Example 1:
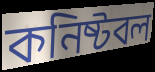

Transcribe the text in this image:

কনিষ্টবল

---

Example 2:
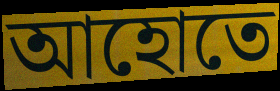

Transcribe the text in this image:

আহোতে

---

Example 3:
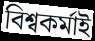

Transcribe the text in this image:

বিশ্বকৰ্মাই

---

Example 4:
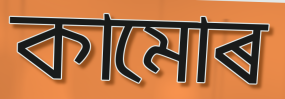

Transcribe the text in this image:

কামোৰ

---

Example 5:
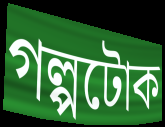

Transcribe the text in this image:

গল্পটোক